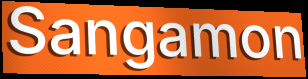
Sangamon